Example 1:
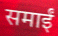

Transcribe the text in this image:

समाईं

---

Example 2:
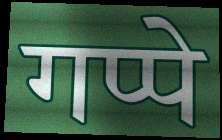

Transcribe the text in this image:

गप्पे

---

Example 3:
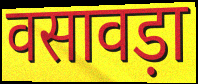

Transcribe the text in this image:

वसावड़ा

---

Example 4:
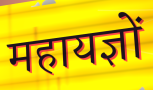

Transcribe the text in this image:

महायज्ञों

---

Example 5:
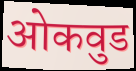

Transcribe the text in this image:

ओकवुड